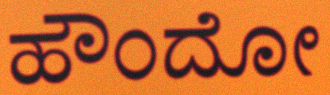
ಹೌಂದೋ